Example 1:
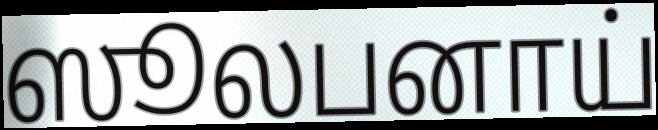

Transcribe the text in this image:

ஸூலபனாய்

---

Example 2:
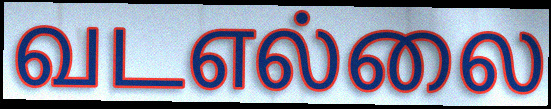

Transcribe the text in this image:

வடஎல்லை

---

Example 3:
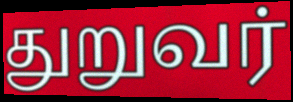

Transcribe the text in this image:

துறுவர்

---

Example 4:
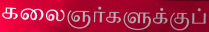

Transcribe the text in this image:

கலைஞர்களுக்குப்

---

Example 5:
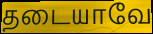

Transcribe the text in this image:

தடையாவே